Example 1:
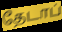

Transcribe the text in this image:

தேடாப்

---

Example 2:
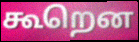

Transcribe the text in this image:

கூறென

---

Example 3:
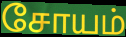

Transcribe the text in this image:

சோயம்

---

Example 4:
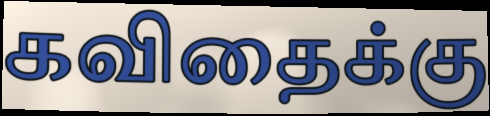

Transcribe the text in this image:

கவிதைக்கு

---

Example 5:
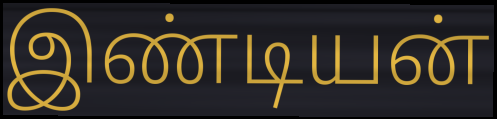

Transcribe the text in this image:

இண்டியன்